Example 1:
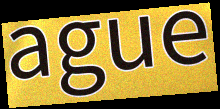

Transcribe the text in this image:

ague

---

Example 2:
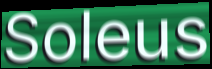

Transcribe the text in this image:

Soleus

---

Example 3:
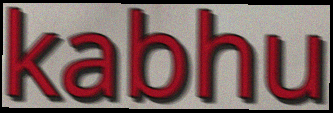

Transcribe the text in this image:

kabhu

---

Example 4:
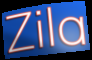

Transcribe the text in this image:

Zila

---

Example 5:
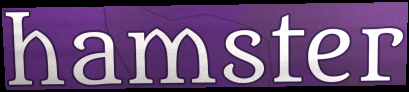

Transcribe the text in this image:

hamster